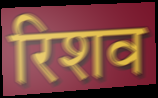
रिशव